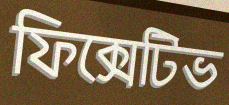
ফিক্সেটিভ